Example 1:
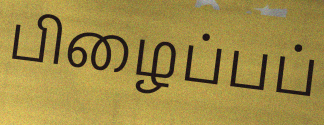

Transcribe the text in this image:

பிழைப்பப்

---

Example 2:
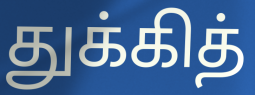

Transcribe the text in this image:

துக்கித்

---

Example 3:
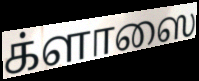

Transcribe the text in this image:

க்ளாஸை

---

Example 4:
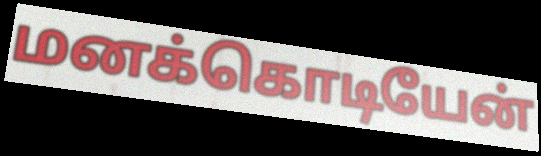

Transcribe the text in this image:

மனக்கொடியேன்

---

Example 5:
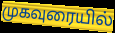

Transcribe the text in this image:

முகவுரையில்